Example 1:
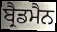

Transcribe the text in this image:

ਬ੍ਰੈਡਮੈਨ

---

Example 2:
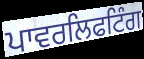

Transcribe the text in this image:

ਪਾਵਰਲਿਫਟਿੰਗ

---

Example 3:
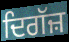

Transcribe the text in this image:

ਦਿਗੱਜ਼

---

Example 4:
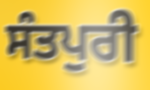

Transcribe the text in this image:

ਸੰਤਪੁਰੀ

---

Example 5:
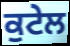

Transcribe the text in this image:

ਕੁਟੇਲ